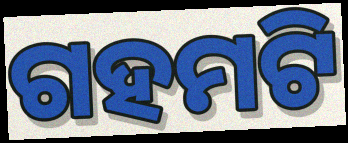
ଗହମଟି